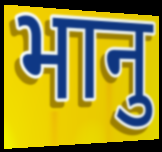
भानु